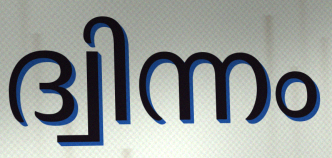
ദ്വിന്നം